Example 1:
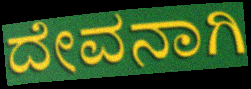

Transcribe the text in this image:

ದೇವನಾಗಿ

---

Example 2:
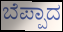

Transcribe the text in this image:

ಬೆಪ್ಪಾದ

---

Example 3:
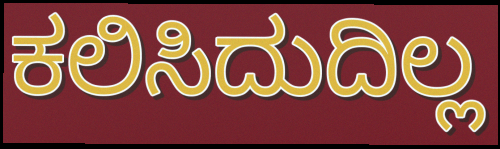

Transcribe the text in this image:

ಕಲಿಸಿದುದಿಲ್ಲ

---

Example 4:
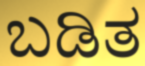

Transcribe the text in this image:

ಬಡಿತ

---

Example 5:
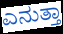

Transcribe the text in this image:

ಎನುತ್ತಾ